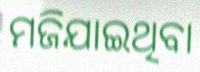
ମଜିଯାଇଥିବା